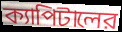
ক্যাপিটালের